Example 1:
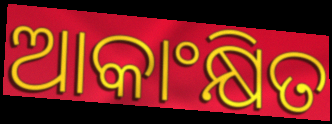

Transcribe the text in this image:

ଆକାଂକ୍ଷିତ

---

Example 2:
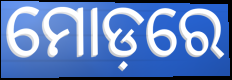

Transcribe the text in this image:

ମୋଡ଼ରେ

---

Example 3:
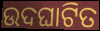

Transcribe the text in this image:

ଉଦଘାଟିତ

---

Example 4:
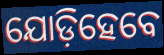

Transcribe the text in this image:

ଯୋଡ଼ିହେବେ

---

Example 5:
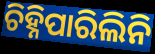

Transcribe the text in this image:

ଚିହ୍ନିପାରିଲିନି